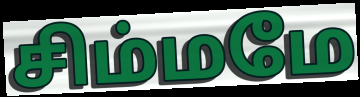
சிம்மமே